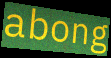
abong